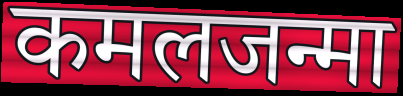
कमलजन्मा